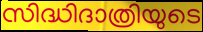
സിദ്ധിദാത്രിയുടെ